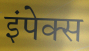
इंपेक्स